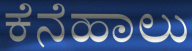
ಕೆನೆಹಾಲು